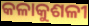
କଳାକୁଶଳୀ